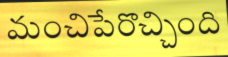
మంచిపేరొచ్చింది